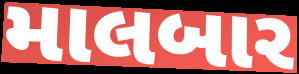
માલબાર